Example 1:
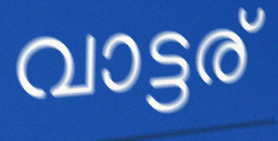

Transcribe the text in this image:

വാട്ടര്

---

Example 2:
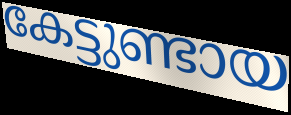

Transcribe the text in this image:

കേട്ടുണ്ടായ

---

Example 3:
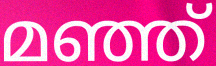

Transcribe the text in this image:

മഞ്ഞ്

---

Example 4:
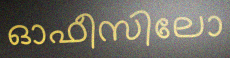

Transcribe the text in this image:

ഓഫീസിലോ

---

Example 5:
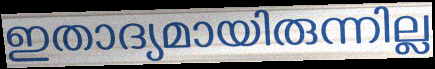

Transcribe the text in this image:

ഇതാദ്യമായിരുന്നില്ല